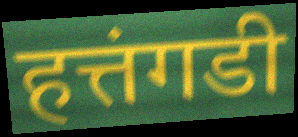
हत्तंगडी